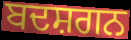
ਬਦਸ਼ਗਨ